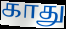
காது